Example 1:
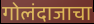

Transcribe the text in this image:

गोलंदाजाचा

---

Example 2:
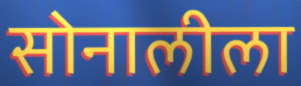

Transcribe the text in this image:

सोनालीला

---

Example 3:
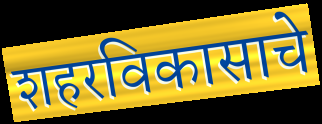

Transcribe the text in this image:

शहरविकासाचे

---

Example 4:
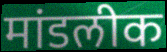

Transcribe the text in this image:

मांडलीक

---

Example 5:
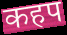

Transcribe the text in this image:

कहप